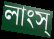
লাংস্